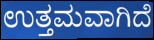
ಉತ್ತಮವಾಗಿದೆ